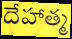
దేహాత్మ